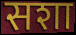
सशा